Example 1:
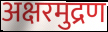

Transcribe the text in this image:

अक्षरमुद्रण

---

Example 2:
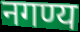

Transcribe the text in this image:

नगण्य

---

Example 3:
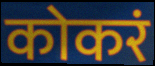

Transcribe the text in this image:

कोकरं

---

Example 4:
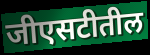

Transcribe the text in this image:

जीएसटीतील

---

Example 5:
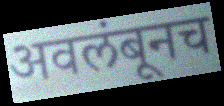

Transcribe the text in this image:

अवलंबूनच